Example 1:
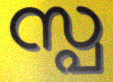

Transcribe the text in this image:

സ്പ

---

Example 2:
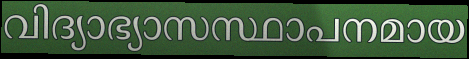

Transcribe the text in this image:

വിദ്യാഭ്യാസസ്ഥാപനമായ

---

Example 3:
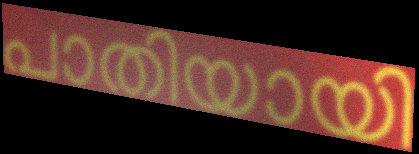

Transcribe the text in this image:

പാതിയായി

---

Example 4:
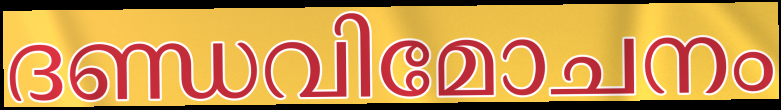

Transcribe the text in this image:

ദണ്ഡവിമോചനം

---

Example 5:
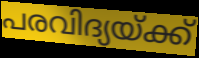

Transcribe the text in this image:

പരവിദ്യയ്ക്ക്